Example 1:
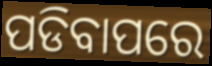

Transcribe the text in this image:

ପଡିବାପରେ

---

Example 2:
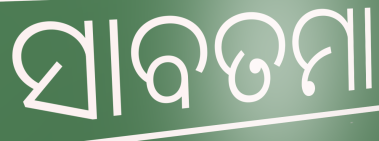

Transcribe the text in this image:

ସାବତମା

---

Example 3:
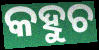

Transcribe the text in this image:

କହୁଚ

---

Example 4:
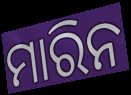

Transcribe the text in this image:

ମାରିନ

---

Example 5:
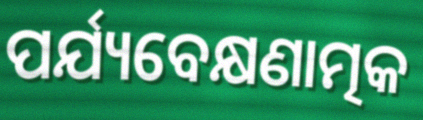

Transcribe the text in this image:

ପର୍ଯ୍ୟବେକ୍ଷଣାତ୍ମକ